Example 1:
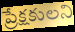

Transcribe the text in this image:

ప్రేక్షకులని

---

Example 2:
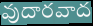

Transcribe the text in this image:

వుదారవాద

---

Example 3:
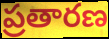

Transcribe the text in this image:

ప్రతారణ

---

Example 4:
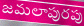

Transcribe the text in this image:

జమలాపురపు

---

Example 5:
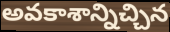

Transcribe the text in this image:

అవకాశాన్నిచ్చిన